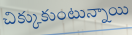
చిక్కుకుంటున్నాయి